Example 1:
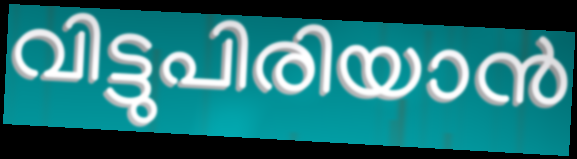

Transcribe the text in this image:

വിട്ടുപിരിയാൻ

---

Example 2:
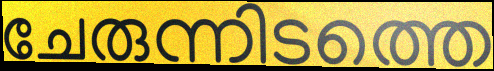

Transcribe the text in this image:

ചേരുന്നിടത്തെ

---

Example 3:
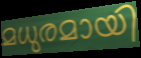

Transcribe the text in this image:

മധുരമായി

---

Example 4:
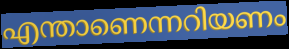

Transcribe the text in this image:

എന്താണെന്നറിയണം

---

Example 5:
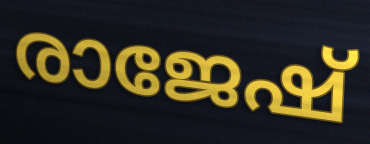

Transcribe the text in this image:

രാജേഷ്